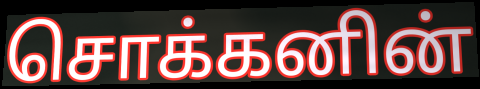
சொக்கனின்